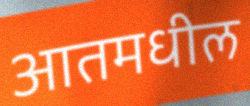
आतमधील